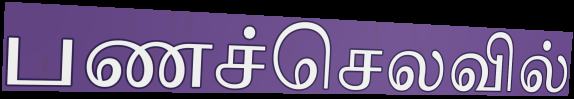
பணச்செலவில்